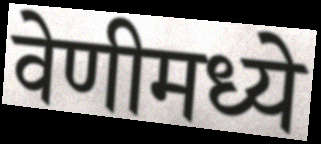
वेणीमध्ये